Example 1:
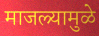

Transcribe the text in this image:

माजल्यामुळे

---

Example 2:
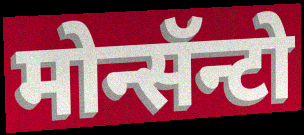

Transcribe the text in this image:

मोन्सॅन्टो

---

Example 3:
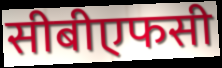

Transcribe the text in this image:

सीबीएफसी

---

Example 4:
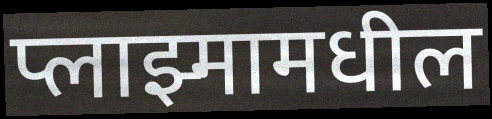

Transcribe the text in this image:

प्लाझ्मामधील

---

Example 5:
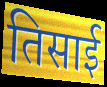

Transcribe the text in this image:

तिसाई